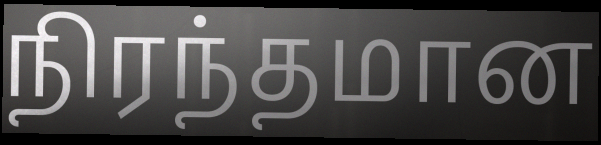
நிரந்தமான